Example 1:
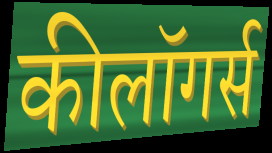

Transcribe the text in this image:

कीलॉगर्स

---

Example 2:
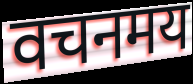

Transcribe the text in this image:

वचनमय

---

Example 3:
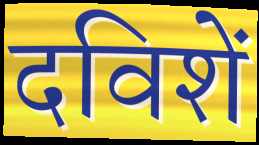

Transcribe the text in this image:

दविशें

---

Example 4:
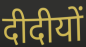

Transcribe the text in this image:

दीदीयों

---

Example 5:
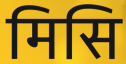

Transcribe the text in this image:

मिसि